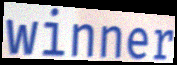
winner